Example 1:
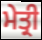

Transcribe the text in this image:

ਮੇਤ੍ਰੀ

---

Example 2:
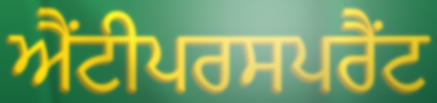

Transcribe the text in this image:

ਐਂਟੀਪਰਸਪਰੈਂਟ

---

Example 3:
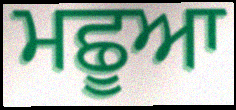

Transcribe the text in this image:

ਮਛੂਆ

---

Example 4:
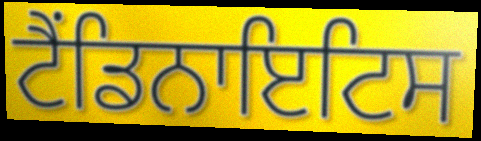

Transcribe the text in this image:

ਟੈਂਡਿਨਾਇਟਿਸ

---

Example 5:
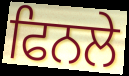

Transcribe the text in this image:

ਫਿਨਲੇ